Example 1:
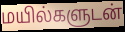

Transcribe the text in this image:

மயில்களுடன்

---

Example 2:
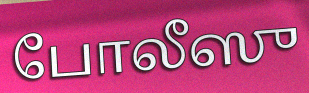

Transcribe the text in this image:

போலீஸு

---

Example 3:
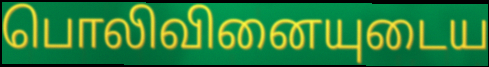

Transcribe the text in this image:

பொலிவினையுடைய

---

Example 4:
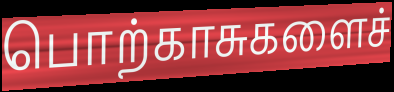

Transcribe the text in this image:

பொற்காசுகளைச்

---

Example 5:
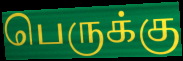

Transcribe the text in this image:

பெருக்கு